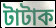
টাটাক